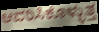
ಆವರಿಸಿಕೊಳ್ಳುತ್ತ